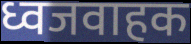
ध्वजवाहक